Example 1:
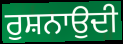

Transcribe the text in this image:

ਰੁਸ਼ਨਾਉਦੀ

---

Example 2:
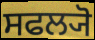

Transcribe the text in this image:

ਸਫਲ੍ਯੋ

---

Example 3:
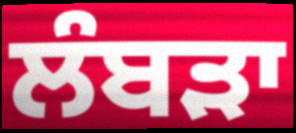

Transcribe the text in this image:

ਲੰਬੜਾ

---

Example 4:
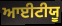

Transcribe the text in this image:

ਆਈਟੀਯੂ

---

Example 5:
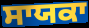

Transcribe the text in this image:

ਸਾਯਕਾ